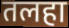
तलहा